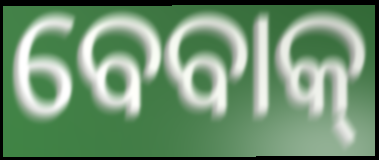
ବେବାକ୍